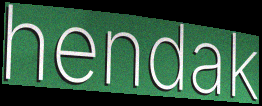
hendak